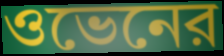
ওভেনের